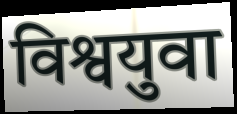
विश्वयुवा